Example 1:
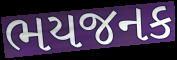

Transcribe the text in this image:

ભયજનક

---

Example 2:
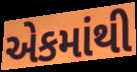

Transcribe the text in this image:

એકમાંથી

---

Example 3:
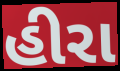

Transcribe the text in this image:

હીરા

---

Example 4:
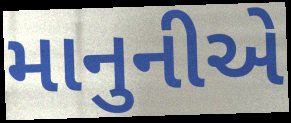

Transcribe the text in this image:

માનુનીએ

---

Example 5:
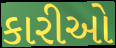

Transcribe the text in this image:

કારીઓ